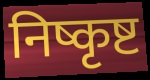
निष्कृष्ट